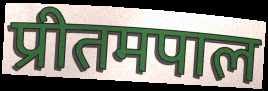
प्रीतमपाल